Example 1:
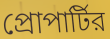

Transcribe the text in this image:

প্রোপার্টির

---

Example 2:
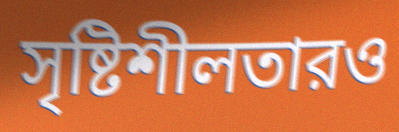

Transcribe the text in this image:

সৃষ্টিশীলতারও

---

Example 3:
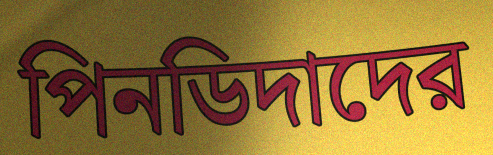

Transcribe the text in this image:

পিনডিদাদের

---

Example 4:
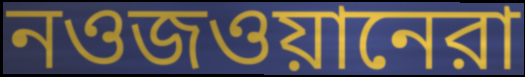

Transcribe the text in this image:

নওজওয়ানেরা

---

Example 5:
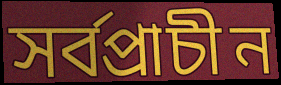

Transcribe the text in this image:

সর্বপ্রাচীন